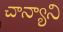
చాన్యాని